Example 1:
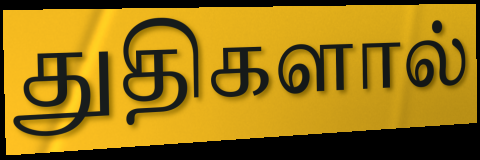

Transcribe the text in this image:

துதிகளால்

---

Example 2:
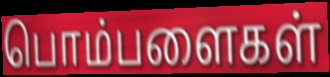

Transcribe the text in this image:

பொம்பளைகள்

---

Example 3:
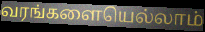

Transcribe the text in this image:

வரங்களையெல்லாம்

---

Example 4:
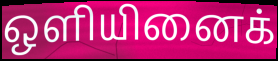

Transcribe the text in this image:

ஒளியினைக்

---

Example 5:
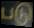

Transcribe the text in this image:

படு